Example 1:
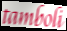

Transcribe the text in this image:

tamboli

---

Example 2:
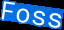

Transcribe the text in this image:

Foss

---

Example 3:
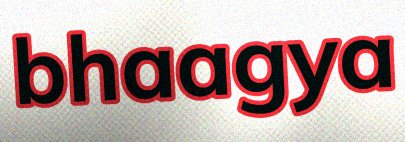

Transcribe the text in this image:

bhaagya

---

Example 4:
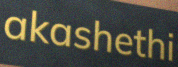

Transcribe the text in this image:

akashethi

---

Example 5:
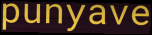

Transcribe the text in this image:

punyave